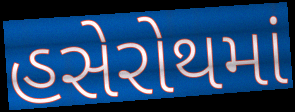
હસેરોથમાં